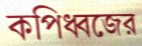
কপিধ্বজের